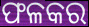
ଫଳକର